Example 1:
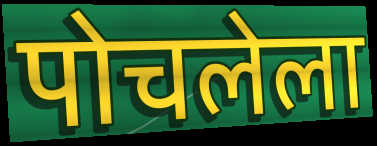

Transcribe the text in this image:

पोचलेला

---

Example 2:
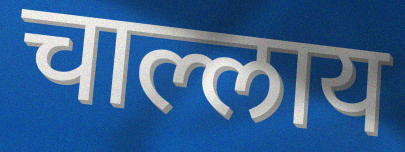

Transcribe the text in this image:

चाल्लाय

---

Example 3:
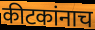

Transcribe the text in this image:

कीटकांनाच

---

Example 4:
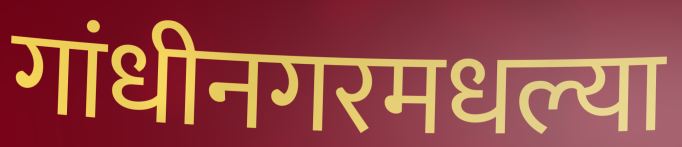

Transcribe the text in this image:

गांधीनगरमधल्या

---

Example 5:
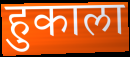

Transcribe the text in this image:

हुकाला